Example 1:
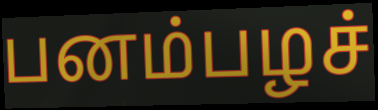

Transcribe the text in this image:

பனம்பழச்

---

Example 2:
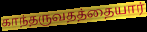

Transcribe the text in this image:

காந்தருவதத்தையார்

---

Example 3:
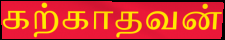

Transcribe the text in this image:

கற்காதவன்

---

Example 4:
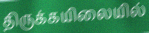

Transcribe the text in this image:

திருக்கயிலையில்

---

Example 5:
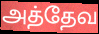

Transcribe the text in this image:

அத்தேவ